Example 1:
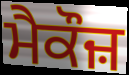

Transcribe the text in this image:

ਮੈਕੌਜ਼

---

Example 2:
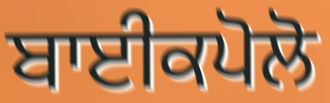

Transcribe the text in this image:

ਬਾਈਕਪੋਲੋ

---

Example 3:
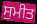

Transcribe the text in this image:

ਸੁਮੀਤ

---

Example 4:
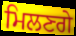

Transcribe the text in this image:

ਮਿਲਣਗੇ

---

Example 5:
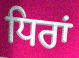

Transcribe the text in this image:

ਧਿਰਾਂ